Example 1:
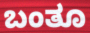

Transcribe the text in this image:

ಬಂತೂ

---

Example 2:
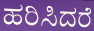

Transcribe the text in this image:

ಹರಿಸಿದರೆ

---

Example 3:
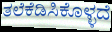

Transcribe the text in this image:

ತಲೆಕೆಡಿಸಿಕೊಳ್ಳದೆ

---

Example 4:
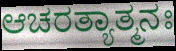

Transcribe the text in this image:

ಆಚರತ್ಯಾತ್ಮನಃ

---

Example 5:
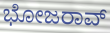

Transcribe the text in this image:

ಭೋಜರಾವ್